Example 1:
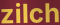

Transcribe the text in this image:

zilch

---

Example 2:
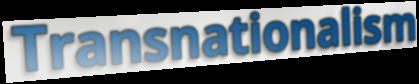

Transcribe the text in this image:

Transnationalism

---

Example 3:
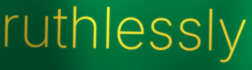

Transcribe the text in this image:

ruthlessly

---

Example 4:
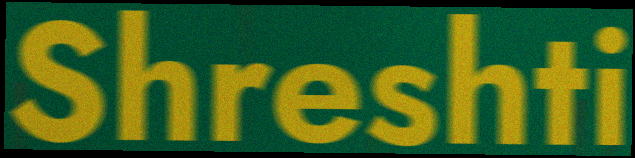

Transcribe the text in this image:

Shreshti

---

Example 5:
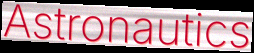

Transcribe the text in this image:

Astronautics